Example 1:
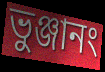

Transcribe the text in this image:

ভুঞ্জানং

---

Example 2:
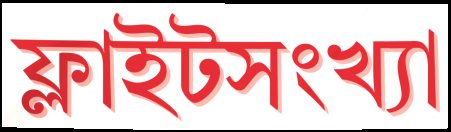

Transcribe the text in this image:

ফ্লাইটসংখ্যা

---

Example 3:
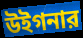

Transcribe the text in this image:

উইগনার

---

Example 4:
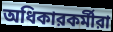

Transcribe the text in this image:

অধিকারকর্মীরা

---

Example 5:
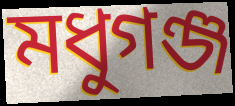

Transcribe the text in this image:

মধুগঞ্জ